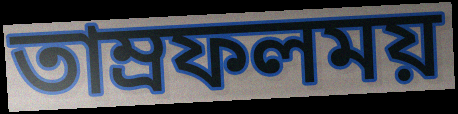
তাম্রফলময়